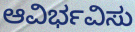
ಆವಿರ್ಭವಿಸು